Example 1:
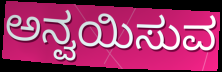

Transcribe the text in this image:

ಅನ್ವಯಿಸುವ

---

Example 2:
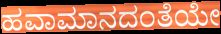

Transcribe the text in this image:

ಹವಾಮಾನದಂತೆಯೇ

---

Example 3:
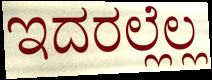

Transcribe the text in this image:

ಇದರಲ್ಲೆಲ್ಲ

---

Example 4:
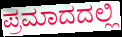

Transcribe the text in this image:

ಪ್ರಮಾದದಲ್ಲಿ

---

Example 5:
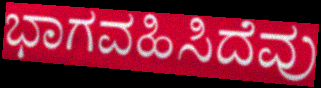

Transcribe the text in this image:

ಭಾಗವಹಿಸಿದೆವು